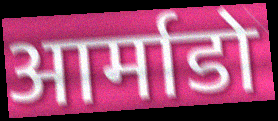
आर्माडो